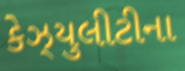
કેઝ્યુલીટીના